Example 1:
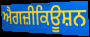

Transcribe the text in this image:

ਐਗਜ਼ੀਕਿਊਸ਼ਨ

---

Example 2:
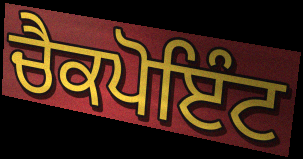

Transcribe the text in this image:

ਚੈਕਪੋਇੰਟ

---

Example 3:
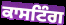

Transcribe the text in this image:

ਕਾਸਟਿੰਗ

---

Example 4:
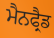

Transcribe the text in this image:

ਮੈਨਫ੍ਰੈਡ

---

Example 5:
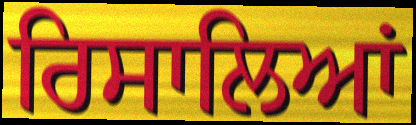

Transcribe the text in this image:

ਰਿਸਾਲਿਆਂ